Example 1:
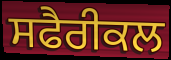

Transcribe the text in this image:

ਸਫੈਰੀਕਲ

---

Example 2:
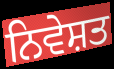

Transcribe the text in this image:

ਨਿਵੇਸ਼ਤ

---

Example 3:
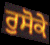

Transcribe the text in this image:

ਰੁਸੋਕੇ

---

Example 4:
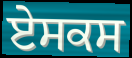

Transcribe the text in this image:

ਏਸਕਸ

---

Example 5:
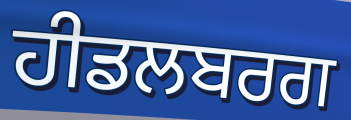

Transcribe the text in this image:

ਹੀਡਲਬਰਗ